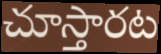
చూస్తారట